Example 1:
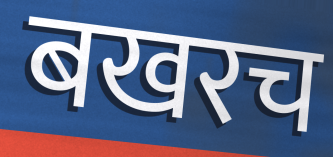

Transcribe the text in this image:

बखरच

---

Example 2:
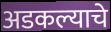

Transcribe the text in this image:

अडकल्याचे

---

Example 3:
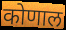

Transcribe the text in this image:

कोणाल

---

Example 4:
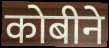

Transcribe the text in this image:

कोबीने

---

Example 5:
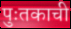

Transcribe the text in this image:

पुःतकाची